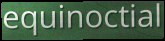
equinoctial